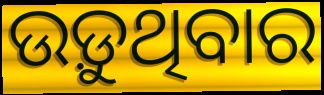
ଉଡ଼ୁଥିବାର